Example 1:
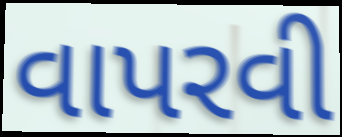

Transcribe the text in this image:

વાપરવી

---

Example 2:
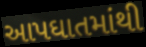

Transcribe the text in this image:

આપઘાતમાંથી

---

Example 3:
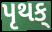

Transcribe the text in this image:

પૃથક્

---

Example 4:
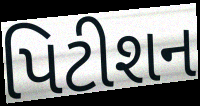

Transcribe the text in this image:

પિટીશન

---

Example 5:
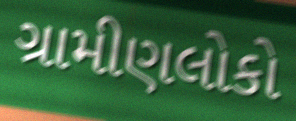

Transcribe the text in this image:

ગ્રામીણલોકો